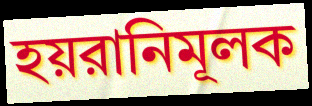
হয়রানিমূলক